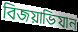
বিজয়াভিযান